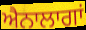
ਐਨਾਲਾਗਾਂ